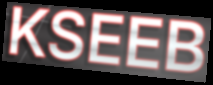
KSEEB